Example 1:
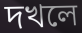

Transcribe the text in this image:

দখলে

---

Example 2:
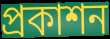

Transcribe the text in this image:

প্ৰকাশন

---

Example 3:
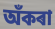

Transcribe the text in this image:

অঁকৰা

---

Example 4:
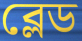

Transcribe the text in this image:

ব্লেড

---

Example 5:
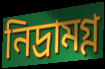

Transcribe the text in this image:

নিদ্ৰামগ্ন